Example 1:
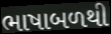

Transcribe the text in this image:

ભાષાબળથી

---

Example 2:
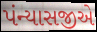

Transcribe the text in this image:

પંન્યાસજીએ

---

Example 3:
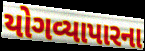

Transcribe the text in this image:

યોગવ્યાપારના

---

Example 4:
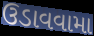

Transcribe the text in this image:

ઉડાવવામા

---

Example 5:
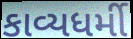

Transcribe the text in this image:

કાવ્યધર્મી